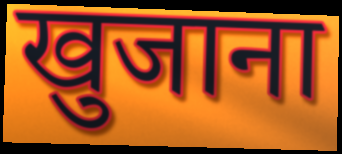
खुजाना